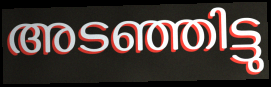
അടഞ്ഞിട്ടു